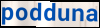
podduna